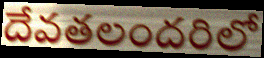
దేవతలందరిలో